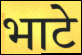
भाटे